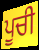
ਪੂਚੀ